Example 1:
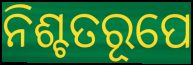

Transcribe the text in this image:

ନିଶ୍ଚତରୂପେ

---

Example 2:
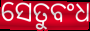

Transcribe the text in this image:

ସେତୁବଂଧ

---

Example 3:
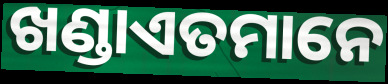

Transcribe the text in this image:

ଖଣ୍ଡାଏତମାନେ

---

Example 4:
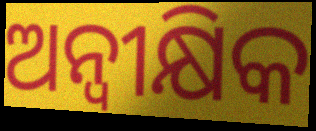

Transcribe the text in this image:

ଅନ୍ୱୀକ୍ଷିକ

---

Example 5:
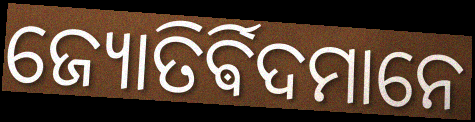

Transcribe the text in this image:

ଜ୍ୟୋତିର୍ଵିଦମାନେ